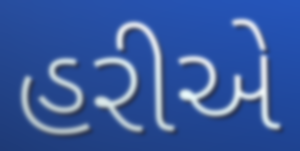
હરીએ